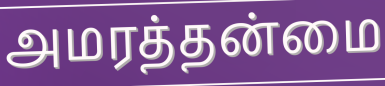
அமரத்தன்மை